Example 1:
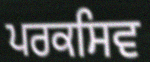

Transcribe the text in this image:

ਪਰਕਸਿਵ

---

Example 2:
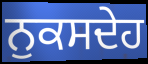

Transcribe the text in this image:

ਨੁਕਸਦੇਹ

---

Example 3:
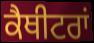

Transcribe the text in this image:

ਕੈਥੀਟਰਾਂ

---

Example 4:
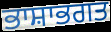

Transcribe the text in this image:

ਭਾਸ਼ਾਭਗਤ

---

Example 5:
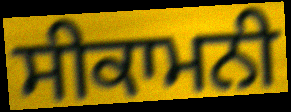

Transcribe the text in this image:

ਸੀਕਾਮਨੀ